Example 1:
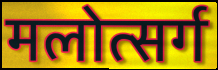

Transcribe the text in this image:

मलोत्सर्ग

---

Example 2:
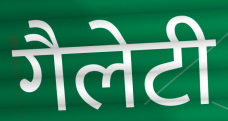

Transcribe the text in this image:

गैलेटी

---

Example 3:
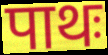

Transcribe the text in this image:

पाथः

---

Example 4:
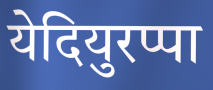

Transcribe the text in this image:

येदियुरप्पा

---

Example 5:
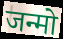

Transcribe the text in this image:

जन्मो